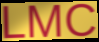
LMC